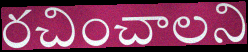
రచించాలని